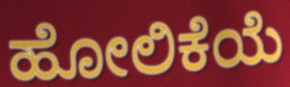
ಹೋಲಿಕೆಯೆ